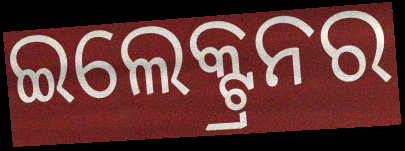
ଇଲେକ୍ଟ୍ରନର